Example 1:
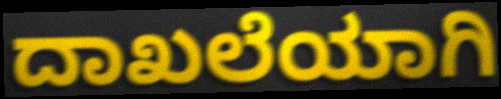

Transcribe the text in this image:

ದಾಖಲೆಯಾಗಿ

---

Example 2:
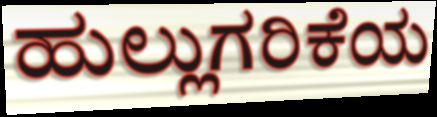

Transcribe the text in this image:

ಹುಲ್ಲುಗರಿಕೆಯ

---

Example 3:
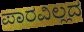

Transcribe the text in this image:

ಪಾರವಿಲ್ಲದ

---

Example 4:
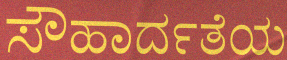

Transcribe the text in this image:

ಸೌಹಾರ್ದತೆಯ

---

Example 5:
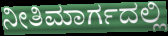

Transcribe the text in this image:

ನೀತಿಮಾರ್ಗದಲ್ಲಿ